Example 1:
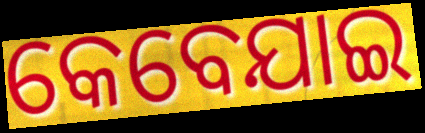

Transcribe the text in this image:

କେବେଯାଇ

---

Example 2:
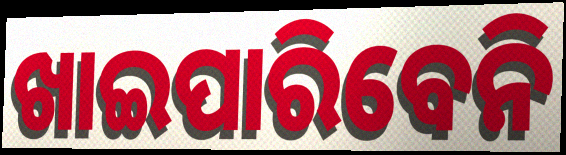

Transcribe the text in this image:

ଖାଇପାରିବେନି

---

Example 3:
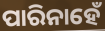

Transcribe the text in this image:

ପାରିନାହେଁ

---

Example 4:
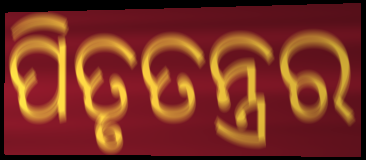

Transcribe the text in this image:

ପିତୃତନ୍ତ୍ରର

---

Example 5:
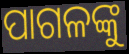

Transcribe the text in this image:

ପାଗଳଙ୍କୁ